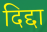
दिद्दा